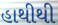
હાથીથી